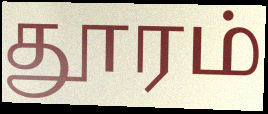
தூரம்